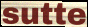
sutte